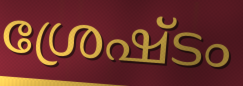
ശ്രേഷ്ടം